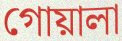
গোয়ালা